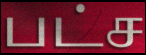
பட்ச